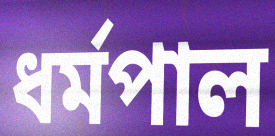
ধর্মপাল